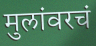
मुलांवरचं